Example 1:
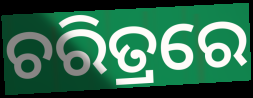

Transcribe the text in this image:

ଚରିତ୍ରରେ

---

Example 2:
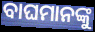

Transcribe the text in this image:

ବାଘମାନଙ୍କୁ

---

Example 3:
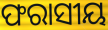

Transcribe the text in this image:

ଫରାସୀୟ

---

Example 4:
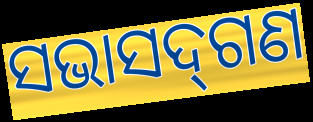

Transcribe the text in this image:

ସଭାସଦ୍‌ଗଣ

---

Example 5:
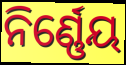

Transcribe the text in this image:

ନିର୍ଣ୍ଣେୟ